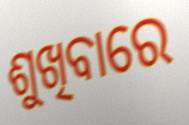
ଶୁଖିବାରେ